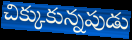
చిక్కుకున్నపుడు